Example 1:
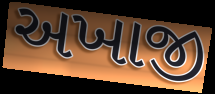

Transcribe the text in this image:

અખાજી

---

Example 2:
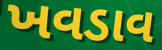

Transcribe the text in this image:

ખવડાવ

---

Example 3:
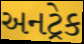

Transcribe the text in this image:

અનટ્રેક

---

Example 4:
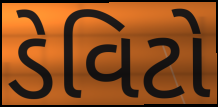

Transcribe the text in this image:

ડેવિટો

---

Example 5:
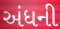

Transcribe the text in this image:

અંધની